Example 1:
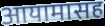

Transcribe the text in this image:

आयामासह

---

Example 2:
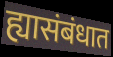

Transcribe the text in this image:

ह्यासंबंधात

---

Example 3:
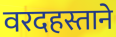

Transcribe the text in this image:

वरदहस्ताने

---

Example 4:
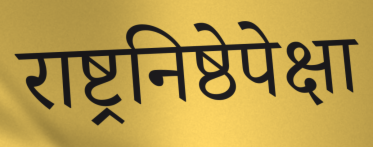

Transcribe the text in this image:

राष्ट्रनिष्ठेपेक्षा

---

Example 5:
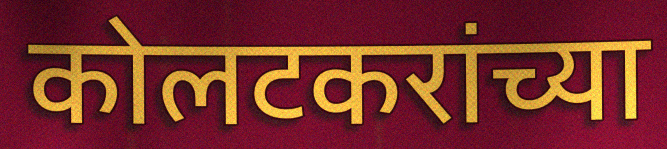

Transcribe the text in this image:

कोलटकरांच्या